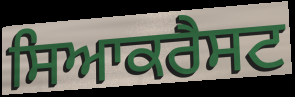
ਸਿਆਕਰੈਸਟ